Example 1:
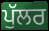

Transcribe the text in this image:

ਪੁੱਲਰ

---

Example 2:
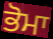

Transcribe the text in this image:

ਭੋਮਾ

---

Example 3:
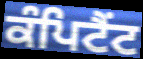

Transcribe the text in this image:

ਕੰਪਿਟੈਂਟ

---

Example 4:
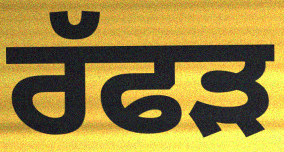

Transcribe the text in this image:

ਰੱਫੜ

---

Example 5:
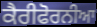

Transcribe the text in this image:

ਕੈਰੀਫੋਰਨੀਆ